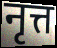
नृत्त